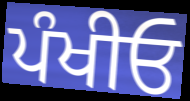
ਪੰਖੀਓ